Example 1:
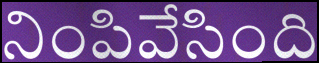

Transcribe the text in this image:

నింపివేసింది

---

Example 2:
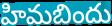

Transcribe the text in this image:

హిమబిందు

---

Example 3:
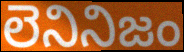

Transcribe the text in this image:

లెనినిజం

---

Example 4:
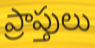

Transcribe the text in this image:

ప్రాప్తులు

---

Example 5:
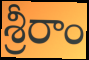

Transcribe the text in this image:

శ్రీరాం